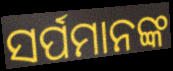
ସର୍ପମାନଙ୍କ